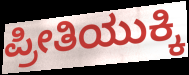
ಪ್ರೀತಿಯುಕ್ಕಿ